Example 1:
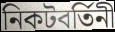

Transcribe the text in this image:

নিকটবর্তিনী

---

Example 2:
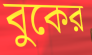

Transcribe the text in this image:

বুকের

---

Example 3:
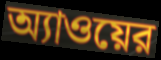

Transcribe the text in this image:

অ্যাওয়ের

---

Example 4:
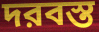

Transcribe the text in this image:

দরবস্ত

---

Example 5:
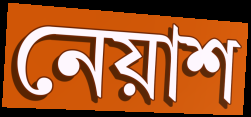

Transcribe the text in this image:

নেয়াশ